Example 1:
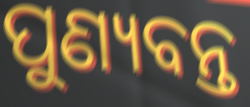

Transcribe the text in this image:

ପୁଣ୍ୟବନ୍ତ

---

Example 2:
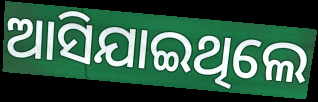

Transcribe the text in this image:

ଆସିଯାଇଥିଲେ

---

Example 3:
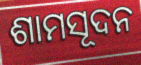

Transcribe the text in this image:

ଶାମସୂଦନ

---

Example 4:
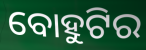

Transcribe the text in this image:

ବୋହୁଟିର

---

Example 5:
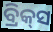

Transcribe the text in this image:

ବ୍ରିକ୍‌ସ